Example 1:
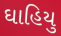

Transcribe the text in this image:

ઘાહિયુ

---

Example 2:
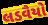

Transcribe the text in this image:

લડવૈયો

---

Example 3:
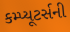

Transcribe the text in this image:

કમ્પ્યૂટર્સની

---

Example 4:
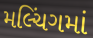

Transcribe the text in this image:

મલ્ચિંગમાં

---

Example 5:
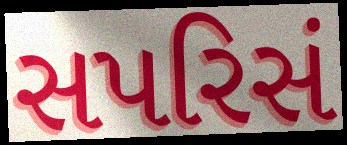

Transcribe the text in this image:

સપરિસં